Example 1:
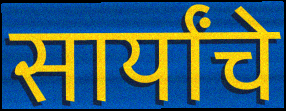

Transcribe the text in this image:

सार्यांचे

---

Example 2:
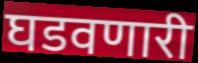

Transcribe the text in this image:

घडवणारी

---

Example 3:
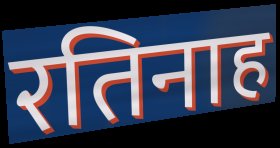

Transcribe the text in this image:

रतिनाह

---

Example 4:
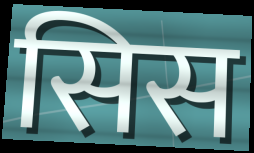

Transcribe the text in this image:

सिस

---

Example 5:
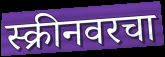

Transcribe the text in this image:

स्क्रीनवरचा